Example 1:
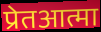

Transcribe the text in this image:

प्रेतआत्मा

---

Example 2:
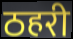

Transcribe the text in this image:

ठहरी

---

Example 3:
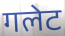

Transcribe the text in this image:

गलेट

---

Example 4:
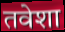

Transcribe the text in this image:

तवेशा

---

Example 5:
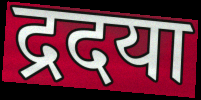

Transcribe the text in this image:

द्रदया